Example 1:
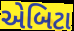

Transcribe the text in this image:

એબિટા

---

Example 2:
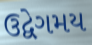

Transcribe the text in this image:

ઉદ્વેગમય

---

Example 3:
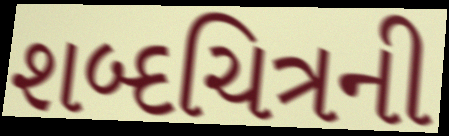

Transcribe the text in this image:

શબ્દચિત્રની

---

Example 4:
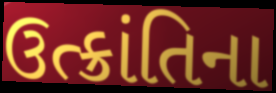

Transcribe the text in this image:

ઉત્ક્રાંતિના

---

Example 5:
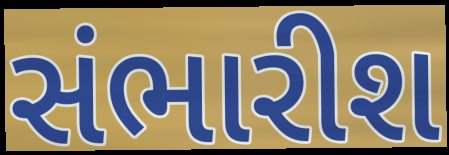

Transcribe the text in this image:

સંભારીશ